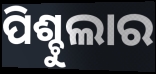
ପିଶ୍ଚୁଲାର